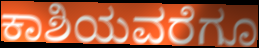
ಕಾಶಿಯವರೆಗೂ